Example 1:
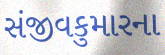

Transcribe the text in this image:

સંજીવકુમારના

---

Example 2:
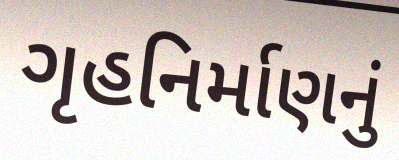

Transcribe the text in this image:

ગૃહનિર્માણનું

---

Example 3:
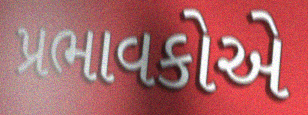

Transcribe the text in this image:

પ્રભાવકોએ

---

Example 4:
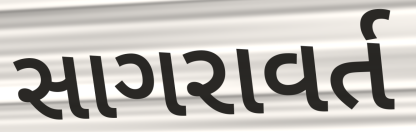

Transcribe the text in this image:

સાગરાવર્ત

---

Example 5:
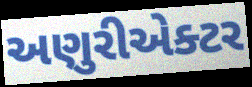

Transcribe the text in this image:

અણુરીએક્ટર